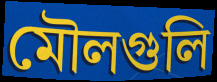
মৌলগুলি